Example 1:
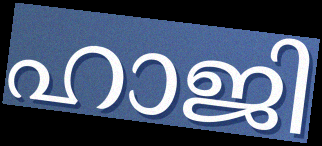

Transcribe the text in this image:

ഹാജി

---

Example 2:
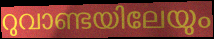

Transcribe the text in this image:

റുവാണ്ടയിലേയും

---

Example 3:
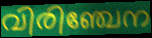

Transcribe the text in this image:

വിരിഞ്ചേന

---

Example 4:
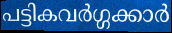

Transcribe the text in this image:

പട്ടികവർഗ്ഗക്കാർ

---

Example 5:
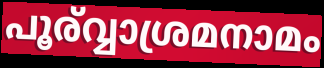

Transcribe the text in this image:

പൂര്വ്വാശ്രമനാമം